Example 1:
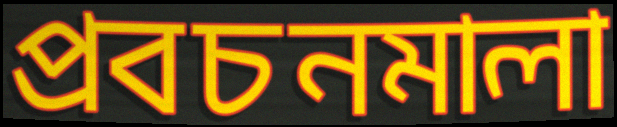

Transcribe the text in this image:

প্রবচনমালা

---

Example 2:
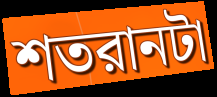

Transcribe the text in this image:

শতরানটা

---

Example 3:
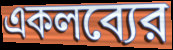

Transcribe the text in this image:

একলব্যের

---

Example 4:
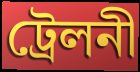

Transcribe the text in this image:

ট্রেলনী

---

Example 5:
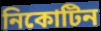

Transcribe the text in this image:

নিকোটিন